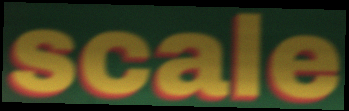
scale